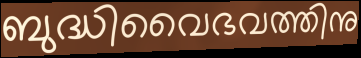
ബുദ്ധിവൈഭവത്തിനു